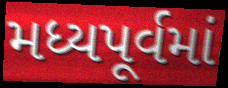
મધ્યપૂર્વમાં